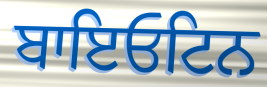
ਬਾਇਓਟਿਨ